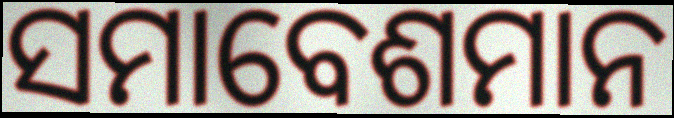
ସମାବେଶମାନ